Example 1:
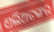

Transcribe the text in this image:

ଏଲିଅଟଙ୍କର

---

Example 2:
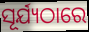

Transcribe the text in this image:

ସୂର୍ଯ୍ୟଠାରେ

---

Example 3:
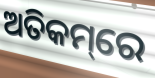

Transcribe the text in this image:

ଅତିକମ୍‌ରେ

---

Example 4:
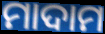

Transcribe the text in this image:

ମାଦାମ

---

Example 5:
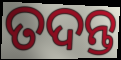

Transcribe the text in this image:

ତଦନ୍ତ